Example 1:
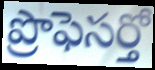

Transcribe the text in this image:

ప్రొఫెసర్తో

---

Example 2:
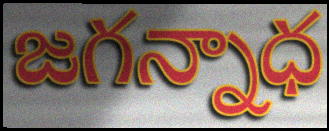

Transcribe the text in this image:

జగన్నాధ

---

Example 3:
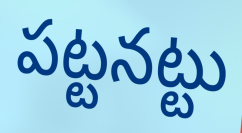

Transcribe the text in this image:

పట్టనట్టు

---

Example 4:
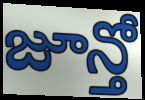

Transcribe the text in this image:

జూన్తో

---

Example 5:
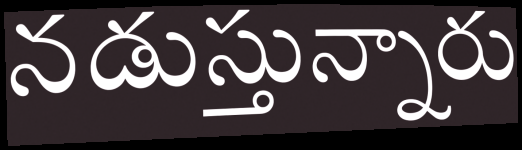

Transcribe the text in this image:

నడుస్తున్నారు